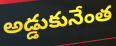
అడ్డుకునేంత